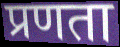
प्रणता